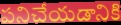
పనిచేయడానికి